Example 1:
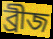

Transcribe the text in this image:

ব্ৰীজ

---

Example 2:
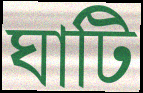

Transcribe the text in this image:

ঘাটি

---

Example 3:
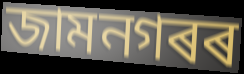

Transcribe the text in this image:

জামনগৰৰ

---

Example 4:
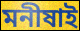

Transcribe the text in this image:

মনীষাই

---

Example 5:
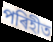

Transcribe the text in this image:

পৰিহীত